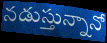
నడుస్తున్నానో